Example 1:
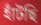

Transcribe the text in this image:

হাঁটছি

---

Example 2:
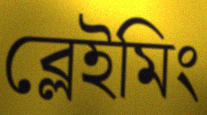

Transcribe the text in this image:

ব্লেইমিং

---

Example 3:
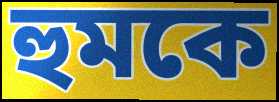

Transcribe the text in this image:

হুমকে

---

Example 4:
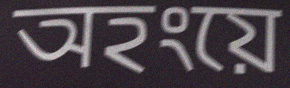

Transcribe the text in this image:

অহংয়ে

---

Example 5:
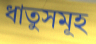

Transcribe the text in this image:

ধাতুসমূহ